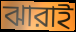
ঝারাই